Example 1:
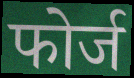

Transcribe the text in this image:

फोर्ज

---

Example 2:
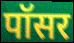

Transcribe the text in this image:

पॉसर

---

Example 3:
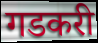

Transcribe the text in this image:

गडकरी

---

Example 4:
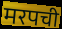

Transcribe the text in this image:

मरपची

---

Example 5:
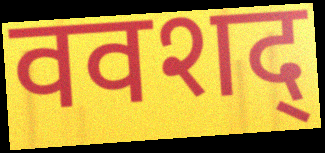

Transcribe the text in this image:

ववशद्